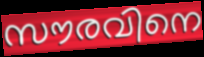
സൗരവിനെ